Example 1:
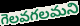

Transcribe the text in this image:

గెలవగలమని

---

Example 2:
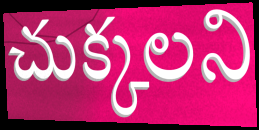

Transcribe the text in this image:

చుక్కలని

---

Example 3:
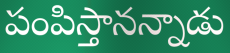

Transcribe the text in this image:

పంపిస్తానన్నాడు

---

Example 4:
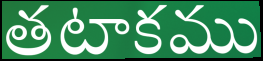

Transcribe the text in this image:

తటాకము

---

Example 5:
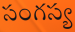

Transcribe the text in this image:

సంగస్య